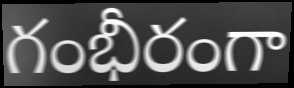
గంభీరంగా